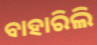
ବାହାରିଲି